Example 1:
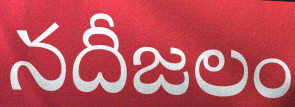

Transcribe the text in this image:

నదీజలం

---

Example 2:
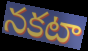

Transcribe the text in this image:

నకటా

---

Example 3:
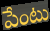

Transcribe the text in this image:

పేంటు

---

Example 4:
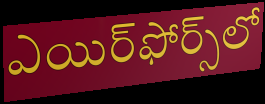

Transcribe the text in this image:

ఎయిర్‌ఫోర్స్‌లో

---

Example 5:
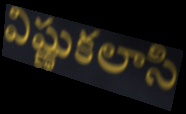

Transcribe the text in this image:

విష్ణుకలాసి